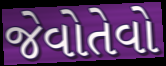
જેવોતેવો